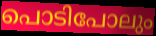
പൊടിപോലും